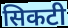
सिकटी